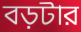
বড়টার